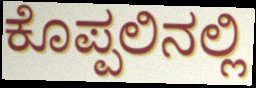
ಕೊಪ್ಪಲಿನಲ್ಲಿ